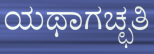
ಯಥಾಗಚ್ಛತಿ